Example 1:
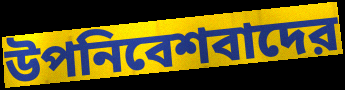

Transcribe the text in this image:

উপনিবেশবাদের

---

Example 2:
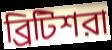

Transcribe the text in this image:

ব্রিটিশরা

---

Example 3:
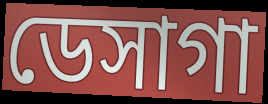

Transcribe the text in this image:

ডেসাগা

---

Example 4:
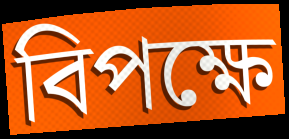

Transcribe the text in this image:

বিপক্ষে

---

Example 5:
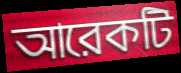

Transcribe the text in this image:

আরেকটি